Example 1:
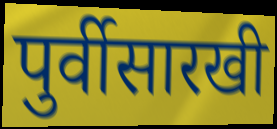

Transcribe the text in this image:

पुर्वीसारखी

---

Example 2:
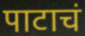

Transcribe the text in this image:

पाटाचं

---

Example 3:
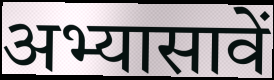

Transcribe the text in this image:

अभ्यासावें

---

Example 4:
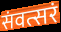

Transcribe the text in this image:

संवत्सरं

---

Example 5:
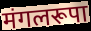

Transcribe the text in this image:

मंगलरूपा